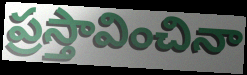
ప్రస్తావించినా